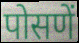
पोसणें